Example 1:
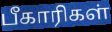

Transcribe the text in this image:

பீகாரிகள்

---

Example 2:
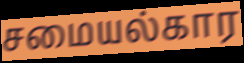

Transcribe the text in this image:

சமையல்கார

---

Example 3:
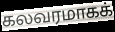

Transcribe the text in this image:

கலவரமாகக்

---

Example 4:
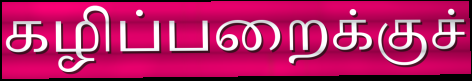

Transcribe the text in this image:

கழிப்பறைக்குச்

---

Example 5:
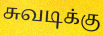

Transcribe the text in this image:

சுவடிக்கு